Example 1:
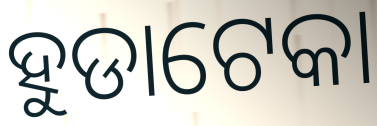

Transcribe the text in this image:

ହୁଡାଟେକା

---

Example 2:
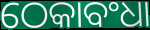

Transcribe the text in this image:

ଠେକାବଂଧା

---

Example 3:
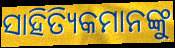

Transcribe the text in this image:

ସାହିତ୍ୟିକମାନଙ୍କୁ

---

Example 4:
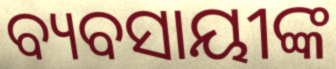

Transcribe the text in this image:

ବ୍ୟବସାୟୀଙ୍କ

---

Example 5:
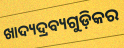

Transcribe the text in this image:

ଖାଦ୍ୟଦ୍ରବ୍ୟଗୁଡ଼ିକର